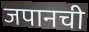
जपानची